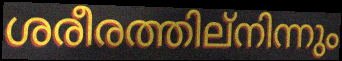
ശരീരത്തില്നിന്നും